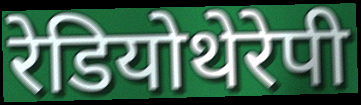
रेडियोथेरेपी